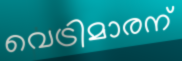
വെട്രിമാരന്